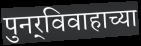
पुनर्विवाहाच्या